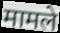
मामले